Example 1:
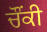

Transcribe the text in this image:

ਚੌਂਕੀ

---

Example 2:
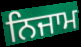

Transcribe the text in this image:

ਨਿਜਾਮ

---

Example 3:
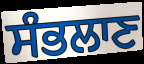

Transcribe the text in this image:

ਸੰਭਲਾਣ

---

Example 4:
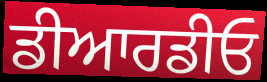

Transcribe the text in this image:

ਡੀਆਰਡੀਓ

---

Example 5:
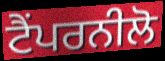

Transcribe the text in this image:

ਟੈਂਪਰਨੀਲੋ